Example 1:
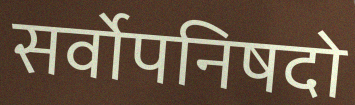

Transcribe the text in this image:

सर्वोपनिषदो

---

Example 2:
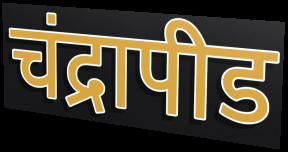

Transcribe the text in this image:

चंद्रापीड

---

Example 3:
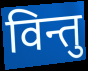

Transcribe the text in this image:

विन्तु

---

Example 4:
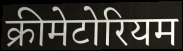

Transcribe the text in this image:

क्रीमेटोरियम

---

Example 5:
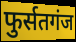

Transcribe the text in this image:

फुर्सतगंज